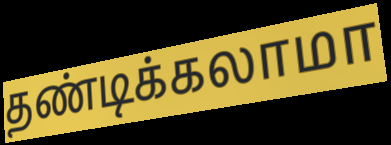
தண்டிக்கலாமா